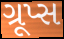
ગ્રૂપ્સ